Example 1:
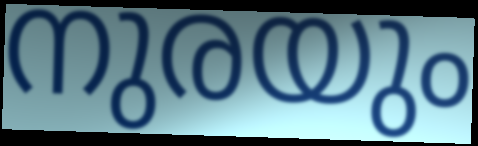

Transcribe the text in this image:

നുരയും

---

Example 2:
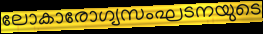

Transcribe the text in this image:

ലോകാരോഗ്യസംഘടനയുടെ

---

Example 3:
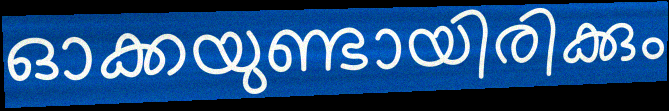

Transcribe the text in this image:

ഓക്കയുണ്ടായിരിക്കും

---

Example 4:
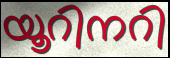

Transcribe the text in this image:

യൂറിനറി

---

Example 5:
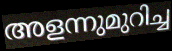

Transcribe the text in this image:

അളന്നുമുറിച്ച